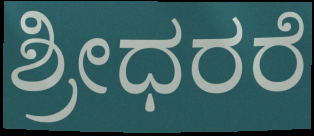
ಶ್ರೀಧರರೆ